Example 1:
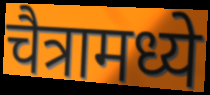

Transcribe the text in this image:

चैत्रामध्ये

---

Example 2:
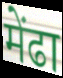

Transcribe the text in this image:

मेंढा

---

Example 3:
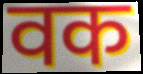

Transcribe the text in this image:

वक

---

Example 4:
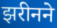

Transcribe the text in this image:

झरीनने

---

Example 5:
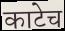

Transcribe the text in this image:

काटेच